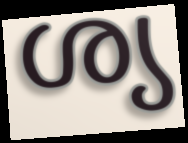
ശ്യ